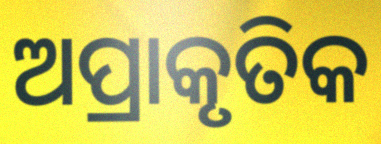
ଅପ୍ରାକୃତିକ